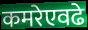
कमरेएवढे